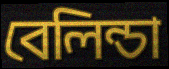
বেলিন্ডা